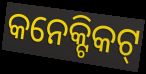
କନେକ୍ଟିକଟ୍